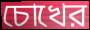
চোখের